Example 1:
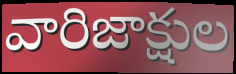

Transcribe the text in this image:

వారిజాక్షుల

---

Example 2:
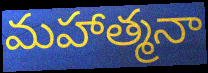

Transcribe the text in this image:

మహాత్మనా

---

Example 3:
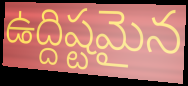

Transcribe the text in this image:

ఉద్దిష్టమైన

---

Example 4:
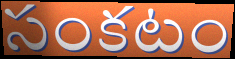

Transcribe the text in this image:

సంకటం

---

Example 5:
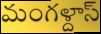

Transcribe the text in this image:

మంగళ్దాస్